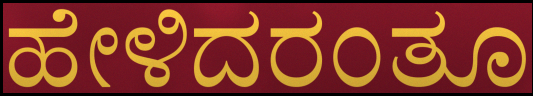
ಹೇಳಿದರಂತೂ